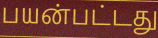
பயன்பட்டது